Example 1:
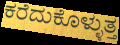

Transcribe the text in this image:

ಕರೆದುಕೊಳ್ಳುತ್ತ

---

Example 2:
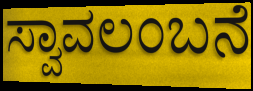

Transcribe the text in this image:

ಸ್ವಾವಲಂಬನೆ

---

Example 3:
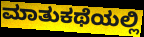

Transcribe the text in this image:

ಮಾತುಕಥೆಯಲ್ಲಿ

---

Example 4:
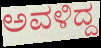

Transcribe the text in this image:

ಅವಳಿದ್ದ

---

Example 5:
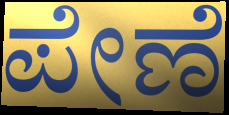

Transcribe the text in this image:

ಪೇಣೆ